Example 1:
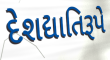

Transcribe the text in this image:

દેશદ્યાતિરૂપે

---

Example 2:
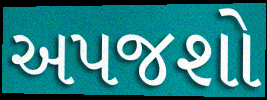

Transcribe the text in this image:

અપજશો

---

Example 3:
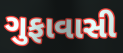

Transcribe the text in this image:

ગુફાવાસી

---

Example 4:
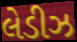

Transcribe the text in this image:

લેડીઝ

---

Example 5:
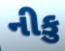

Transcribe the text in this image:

નીકુ